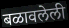
बळावलेली